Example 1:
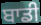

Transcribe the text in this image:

ਬਾਡੀ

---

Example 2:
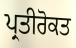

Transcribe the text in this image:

ਪ੍ਰਤੀਰੋਕਤ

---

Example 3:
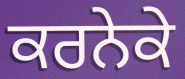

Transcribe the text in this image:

ਕਰਨੇਕੇ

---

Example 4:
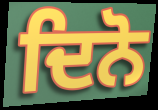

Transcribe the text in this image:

ਦਿਨੋ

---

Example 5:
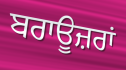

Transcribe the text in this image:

ਬਰਾਊਜ਼ਰਾਂ